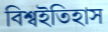
বিশ্বইতিহাস